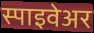
स्पाइवेअर